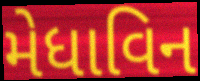
મેધાવિન